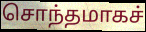
சொந்தமாகச்